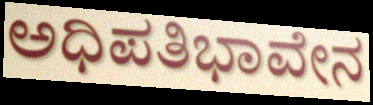
ಅಧಿಪತಿಭಾವೇನ